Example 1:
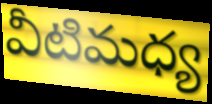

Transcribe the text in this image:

వీటిమధ్య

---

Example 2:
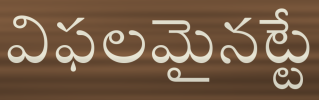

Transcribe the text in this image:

విఫలమైనట్టే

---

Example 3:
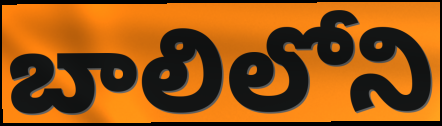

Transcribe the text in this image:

బాలిలోని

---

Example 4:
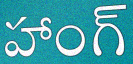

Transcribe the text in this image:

హాంగ్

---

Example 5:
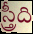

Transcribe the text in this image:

స్త్రీది